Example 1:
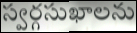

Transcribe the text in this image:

స్వర్గసుఖాలను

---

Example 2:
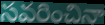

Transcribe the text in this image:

సవరించినా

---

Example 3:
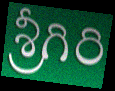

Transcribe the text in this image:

శ్రీగిరి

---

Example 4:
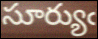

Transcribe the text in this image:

సూర్యుఁ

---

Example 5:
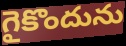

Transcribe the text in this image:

గైకొందును